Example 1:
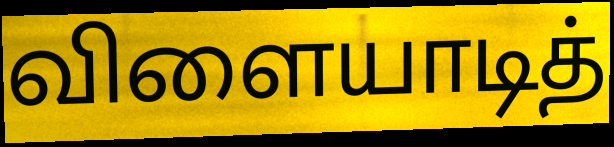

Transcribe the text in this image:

விளையாடித்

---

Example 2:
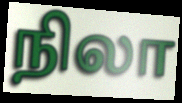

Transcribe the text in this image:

நிலா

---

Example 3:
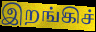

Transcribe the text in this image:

இறங்கிச்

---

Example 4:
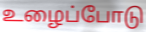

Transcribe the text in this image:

உழைப்போடு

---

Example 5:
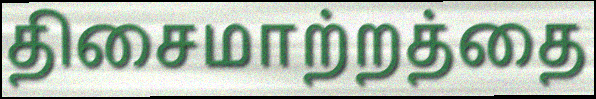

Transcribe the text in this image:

திசைமாற்றத்தை